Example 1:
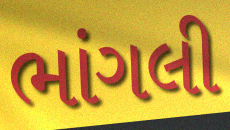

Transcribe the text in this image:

ભાંગલી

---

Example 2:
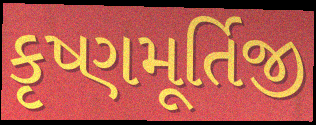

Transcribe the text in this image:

કૃષ્ણમૂર્તિજી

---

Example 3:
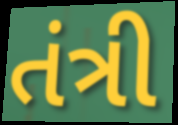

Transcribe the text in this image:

તંત્રી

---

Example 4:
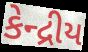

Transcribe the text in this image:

કેન્દ્રીય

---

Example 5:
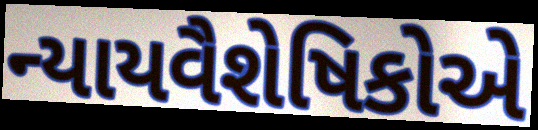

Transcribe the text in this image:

ન્યાયવૈશેષિકોએ